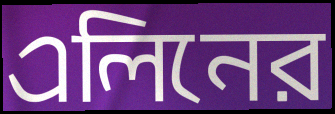
এলিনের